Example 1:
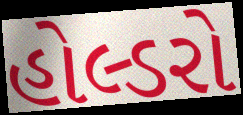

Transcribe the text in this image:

હોલ્ડરો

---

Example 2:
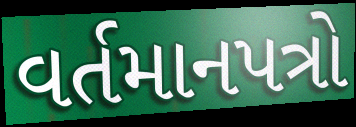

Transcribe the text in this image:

વર્તમાનપત્રો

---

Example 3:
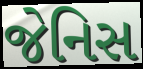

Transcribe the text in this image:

જેનિસ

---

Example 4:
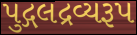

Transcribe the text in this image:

પુદ્ગલદ્રવ્યરૂપ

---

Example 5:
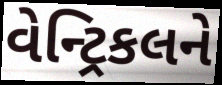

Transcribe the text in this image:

વેન્ટ્રિકલને